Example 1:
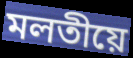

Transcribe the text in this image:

মলতীয়ে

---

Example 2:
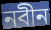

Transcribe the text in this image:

নবীন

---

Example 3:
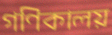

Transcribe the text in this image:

গণিকালয়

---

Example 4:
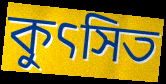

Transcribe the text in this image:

কুৎসিত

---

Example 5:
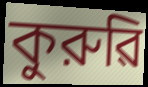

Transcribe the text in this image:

কুৰুৱি